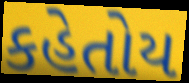
કહેતોય